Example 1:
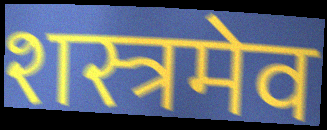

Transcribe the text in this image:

शस्त्रमेव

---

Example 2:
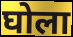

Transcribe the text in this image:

घोला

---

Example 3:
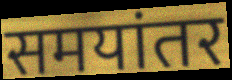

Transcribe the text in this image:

समयांतर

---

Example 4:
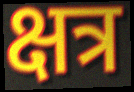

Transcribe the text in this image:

क्षत्र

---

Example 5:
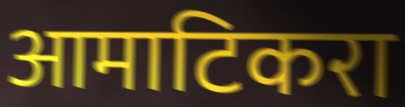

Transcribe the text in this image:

आमाटिकरा